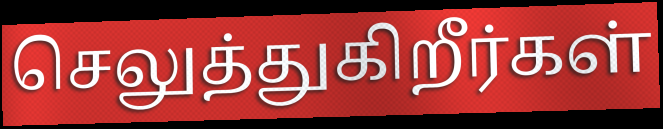
செலுத்துகிறீர்கள்